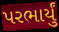
પરભાર્યું